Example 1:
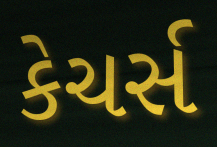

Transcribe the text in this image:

કેચર્સ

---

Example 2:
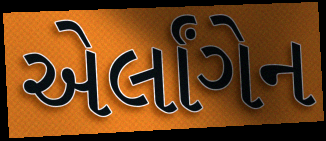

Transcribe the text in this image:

એર્લાંગેન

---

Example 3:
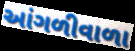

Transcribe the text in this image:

આંગળીવાળા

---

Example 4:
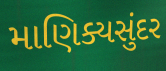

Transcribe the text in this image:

માણિક્યસુંદર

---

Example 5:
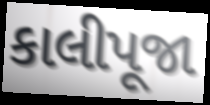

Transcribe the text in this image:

કાલીપૂજા